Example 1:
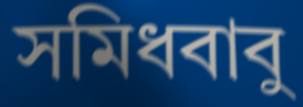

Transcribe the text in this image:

সমিধবাবু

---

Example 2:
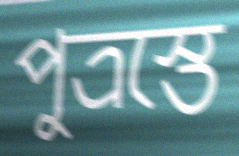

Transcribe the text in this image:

পুত্রস্তে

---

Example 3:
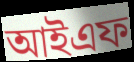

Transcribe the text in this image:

আইএফ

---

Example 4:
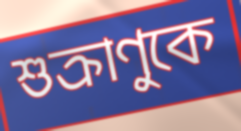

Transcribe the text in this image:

শুক্রাণুকে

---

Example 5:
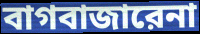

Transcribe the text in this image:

বাগবাজারেনা